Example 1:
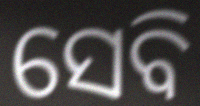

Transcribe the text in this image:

ସେବି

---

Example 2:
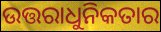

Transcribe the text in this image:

ଉତ୍ତରାଧୁନିକତାର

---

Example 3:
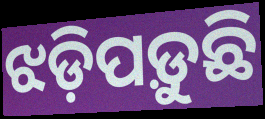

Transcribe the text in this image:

ଝଡ଼ିପଡ଼ୁଛି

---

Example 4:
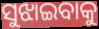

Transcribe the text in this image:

ସୁଝାଇବାକୁ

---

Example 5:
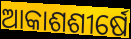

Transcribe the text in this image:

ଆକାଶଶୀର୍ଷେ